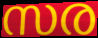
സര